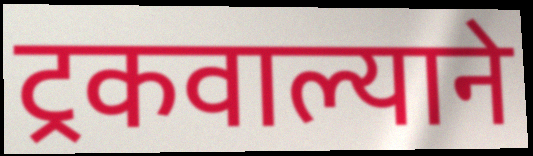
ट्रकवाल्याने